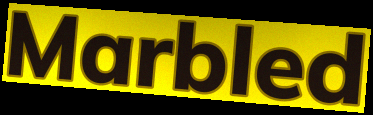
Marbled